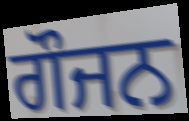
ਗੌਜਨ